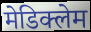
मेडिक्लेम